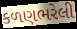
કળણભરેલી